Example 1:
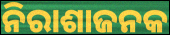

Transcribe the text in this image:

ନିରାଶାଜନକ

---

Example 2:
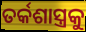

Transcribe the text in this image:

ତର୍କଶାସ୍ତ୍ରକୁ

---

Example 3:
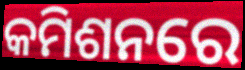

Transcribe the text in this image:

କମିଶନରେ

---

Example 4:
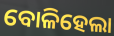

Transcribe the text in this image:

ବୋଳିହେଲା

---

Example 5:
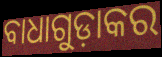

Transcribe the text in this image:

ବାଧାଗୁଡ଼ାକର